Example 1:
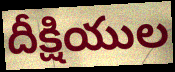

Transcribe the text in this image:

దీక్షియుల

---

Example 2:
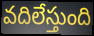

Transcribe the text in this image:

వదిలేస్తుంది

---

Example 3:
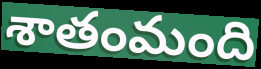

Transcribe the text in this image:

శాతంమంది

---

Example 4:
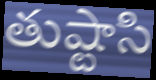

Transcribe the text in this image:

తుష్టాసి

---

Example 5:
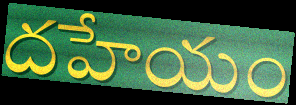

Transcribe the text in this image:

దహేయం